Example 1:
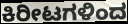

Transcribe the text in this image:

ಕಿರೀಟಗಳಿಂದ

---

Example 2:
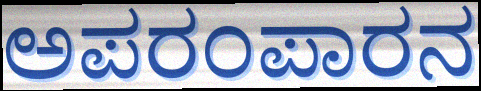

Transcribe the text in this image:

ಅಪರಂಪಾರನ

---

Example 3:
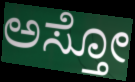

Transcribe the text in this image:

ಅಸ್ತೋ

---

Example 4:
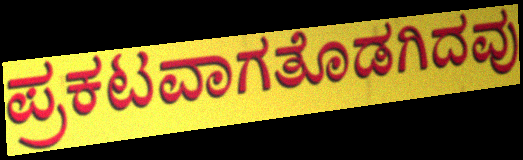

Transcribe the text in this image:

ಪ್ರಕಟವಾಗತೊಡಗಿದವು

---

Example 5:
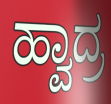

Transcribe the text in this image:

ಹ್ವಾದ್ರ